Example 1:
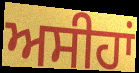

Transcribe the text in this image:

ਅਸੀਹਾਂ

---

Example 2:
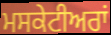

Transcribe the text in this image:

ਮਸਕੇਟੀਅਰਾਂ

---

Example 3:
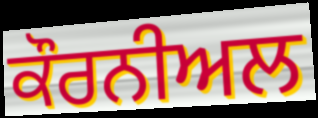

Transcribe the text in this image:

ਕੌਰਨੀਅਲ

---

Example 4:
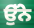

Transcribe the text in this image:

ਉੱਨੇ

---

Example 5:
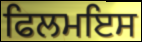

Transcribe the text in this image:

ਫਿਲਮਇਸ